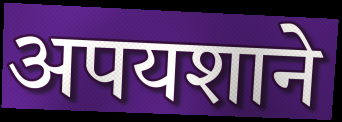
अपयशाने